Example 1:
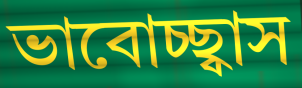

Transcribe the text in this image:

ভাবোচ্ছ্বাস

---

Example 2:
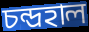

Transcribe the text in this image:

চন্দ্ৰহাল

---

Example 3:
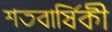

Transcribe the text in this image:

শতবাৰ্ষিকী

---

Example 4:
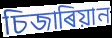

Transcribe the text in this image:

চিজাৰিয়ান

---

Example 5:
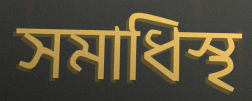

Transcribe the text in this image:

সমাধিস্থ